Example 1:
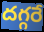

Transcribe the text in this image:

దగ్గరే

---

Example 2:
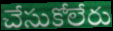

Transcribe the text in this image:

చేసుకోలేరు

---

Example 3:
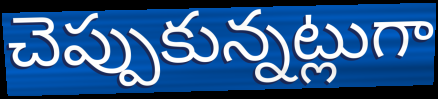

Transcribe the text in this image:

చెప్పుకున్నట్లుగా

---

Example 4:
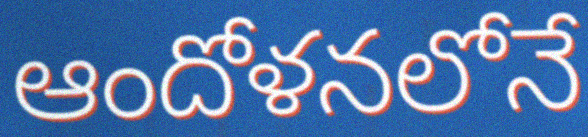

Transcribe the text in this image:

ఆందోళనలోనే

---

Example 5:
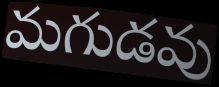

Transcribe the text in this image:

మగుడవు